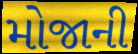
મોજાની